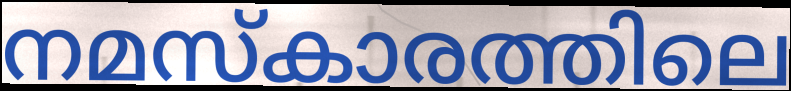
നമസ്കാരത്തിലെ